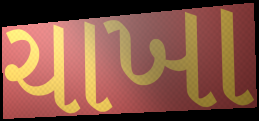
ચાખા